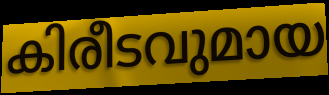
കിരീടവുമായ